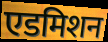
एडमिशन